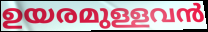
ഉയരമുള്ളവൻ